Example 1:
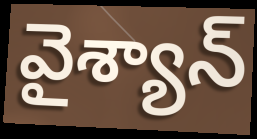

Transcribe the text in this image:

వైశ్యాన్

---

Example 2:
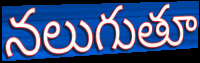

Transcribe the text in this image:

నలుగుతూ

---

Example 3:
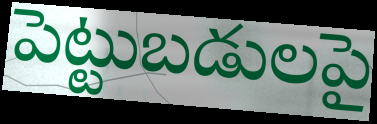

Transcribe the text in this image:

పెట్టుబడులపై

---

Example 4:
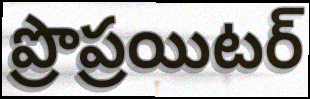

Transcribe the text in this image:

ప్రొప్రయిటర్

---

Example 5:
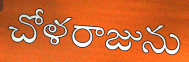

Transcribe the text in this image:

చోళరాజును